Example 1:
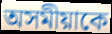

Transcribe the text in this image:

অসমীয়াকে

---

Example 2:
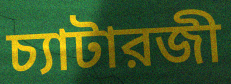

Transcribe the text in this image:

চ্যাটারজী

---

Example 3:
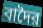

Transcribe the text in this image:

বাদৈর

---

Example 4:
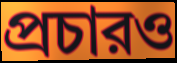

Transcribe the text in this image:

প্রচারও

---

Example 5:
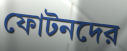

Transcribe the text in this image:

ফোটনদের